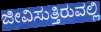
ಜೀವಿಸುತ್ತಿರುವಲ್ಲಿ